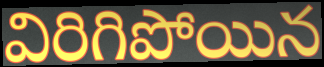
విరిగిపోయిన